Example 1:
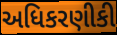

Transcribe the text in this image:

અધિકરણીકી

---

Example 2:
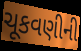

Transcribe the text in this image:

ચૂકવણીની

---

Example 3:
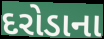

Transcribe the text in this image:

દરોડાના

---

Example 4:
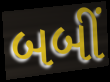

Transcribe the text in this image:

બબીં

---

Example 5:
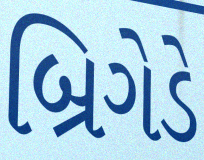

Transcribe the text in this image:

બ્રિગેડે